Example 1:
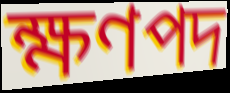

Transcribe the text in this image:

ক্ষণপদ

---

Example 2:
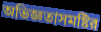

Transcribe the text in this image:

অভিজ্ঞতাসমষ্টির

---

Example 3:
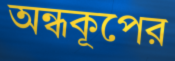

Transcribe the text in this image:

অন্ধকূপের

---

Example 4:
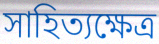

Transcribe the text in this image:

সাহিত্যক্ষেত্র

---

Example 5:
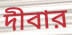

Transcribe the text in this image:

দীবার